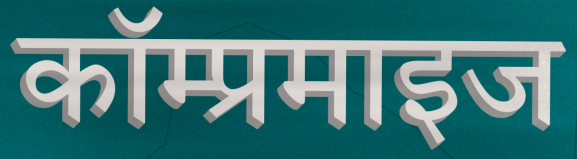
कॉम्प्रमाइज